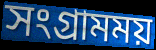
সংগ্রামময়